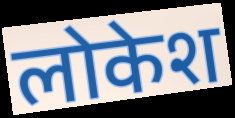
लोकेश